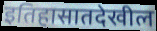
इतिहासातदेखील